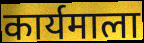
कार्यमाला